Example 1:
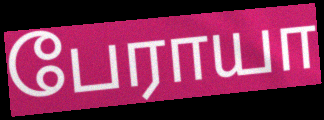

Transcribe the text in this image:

பேராயா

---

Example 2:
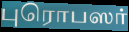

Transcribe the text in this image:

புரொபஸர்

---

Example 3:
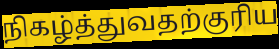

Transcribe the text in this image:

நிகழ்த்துவதற்குரிய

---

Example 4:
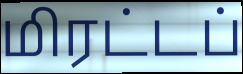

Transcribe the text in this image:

மிரட்டப்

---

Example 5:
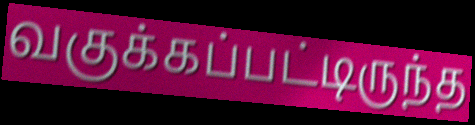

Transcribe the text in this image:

வகுக்கப்பட்டிருந்த